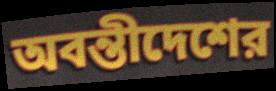
অবন্তীদেশের